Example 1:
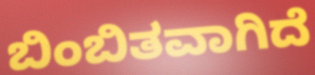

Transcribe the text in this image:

ಬಿಂಬಿತವಾಗಿದೆ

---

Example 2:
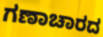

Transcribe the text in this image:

ಗಣಾಚಾರದ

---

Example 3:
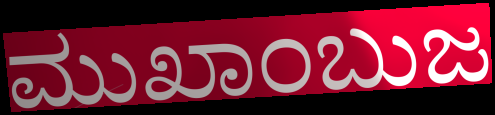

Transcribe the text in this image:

ಮುಖಾಂಬುಜ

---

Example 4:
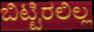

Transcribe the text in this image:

ಬಿಟ್ಟಿರಲಿಲ್ಲ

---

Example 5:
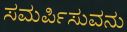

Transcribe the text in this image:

ಸಮರ್ಪಿಸುವನು